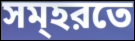
সম্হরতে